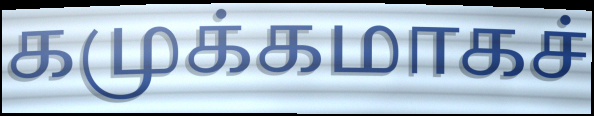
கமுக்கமாகச்